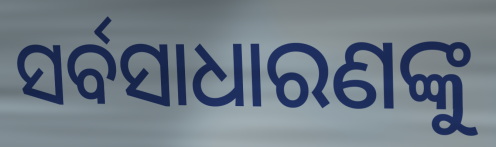
ସର୍ବସାଧାରଣଙ୍କୁ